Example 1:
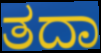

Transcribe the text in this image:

ತದಾ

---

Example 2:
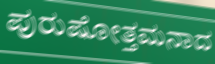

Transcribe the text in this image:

ಪುರುಷೋತ್ತಮನಾದ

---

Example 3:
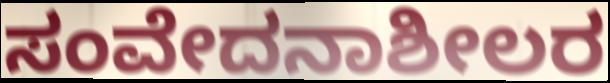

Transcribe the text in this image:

ಸಂವೇದನಾಶೀಲರ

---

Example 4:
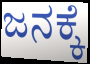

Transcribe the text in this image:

ಜನಕ್ಕೆ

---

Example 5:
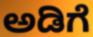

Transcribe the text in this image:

ಅಡಿಗೆ